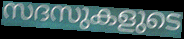
സദസുകളുടെ